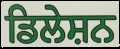
ਡਿਲੇਸ਼ਨ